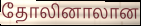
தோலினாலான